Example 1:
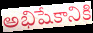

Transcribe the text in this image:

అభిషేకానికి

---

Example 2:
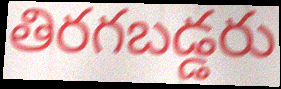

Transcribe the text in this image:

తిరగబడ్డరు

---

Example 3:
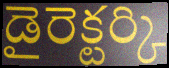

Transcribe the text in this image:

డైరెక్టర్కి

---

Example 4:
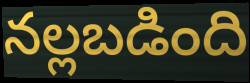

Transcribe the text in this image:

నల్లబడింది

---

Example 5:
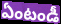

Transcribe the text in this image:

ఏంటండీ